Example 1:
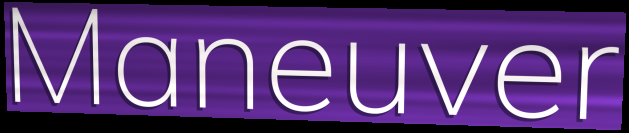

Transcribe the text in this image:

Maneuver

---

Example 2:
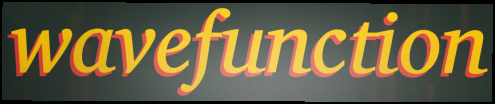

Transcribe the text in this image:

wavefunction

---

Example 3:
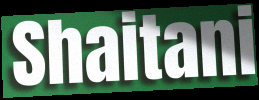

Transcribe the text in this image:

Shaitani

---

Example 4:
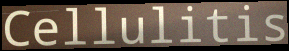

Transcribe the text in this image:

Cellulitis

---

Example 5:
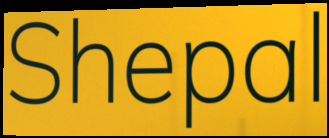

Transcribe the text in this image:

Shepal